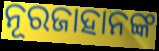
ନୂରଜାହାନଙ୍କ